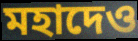
মহাদেও